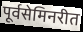
पूर्वसेमिनरीत